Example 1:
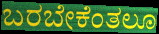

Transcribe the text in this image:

ಬರಬೇಕೆಂತಲೂ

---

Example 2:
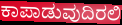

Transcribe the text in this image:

ಕಾಪಾಡುವುದಿರಲಿ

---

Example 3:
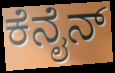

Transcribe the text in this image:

ಕೆನೈನ್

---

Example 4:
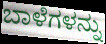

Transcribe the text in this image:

ಬಾಳೆಗಳನ್ನು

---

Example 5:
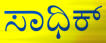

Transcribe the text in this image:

ಸಾಧಿಕ್